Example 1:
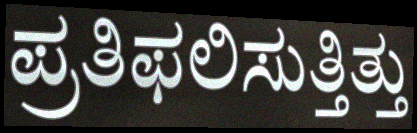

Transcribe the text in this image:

ಪ್ರತಿಫಲಿಸುತ್ತಿತ್ತು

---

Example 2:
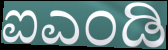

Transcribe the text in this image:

ಐಎಂಡಿ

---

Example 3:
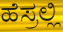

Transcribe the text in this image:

ಹೆಸ್ರಲ್ಲಿ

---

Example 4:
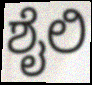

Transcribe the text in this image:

ಶೈಲಿ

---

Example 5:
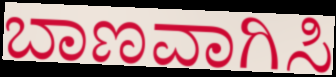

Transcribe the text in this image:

ಬಾಣವಾಗಿಸಿ